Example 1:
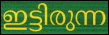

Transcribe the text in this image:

ഇട്ടിരുന്ന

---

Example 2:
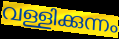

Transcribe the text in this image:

വള്ളിക്കുന്നം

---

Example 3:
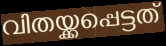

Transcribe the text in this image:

വിതയ്ക്കപ്പെട്ടത്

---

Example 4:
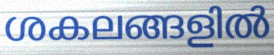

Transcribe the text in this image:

ശകലങ്ങളിൽ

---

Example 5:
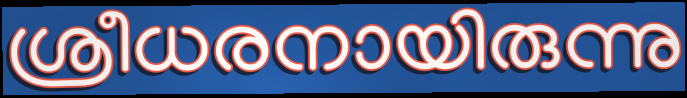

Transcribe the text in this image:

ശ്രീധരനായിരുന്നു